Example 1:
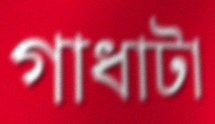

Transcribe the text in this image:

গাধাটা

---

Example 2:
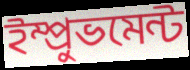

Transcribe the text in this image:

ইম্প্রুভমেন্ট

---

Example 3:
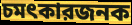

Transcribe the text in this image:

চমৎকারজনক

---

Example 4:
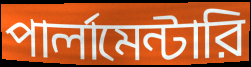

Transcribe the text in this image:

পার্লামেন্টারি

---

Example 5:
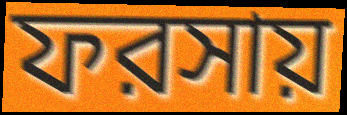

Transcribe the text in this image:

ফরসায়